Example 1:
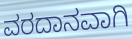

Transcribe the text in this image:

ವರದಾನವಾಗಿ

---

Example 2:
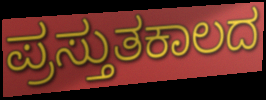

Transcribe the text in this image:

ಪ್ರಸ್ತುತಕಾಲದ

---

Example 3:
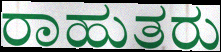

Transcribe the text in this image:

ರಾಹುತರು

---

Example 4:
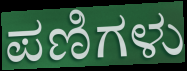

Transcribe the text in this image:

ಪಣಿಗಳು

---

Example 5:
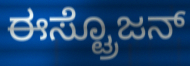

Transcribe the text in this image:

ಈಸ್ಟ್ರೊಜನ್